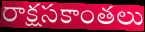
రాక్షసకాంతలు